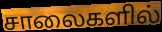
சாலைகளில்